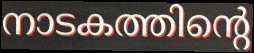
നാടകത്തിന്റെ